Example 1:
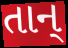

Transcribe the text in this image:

તાન્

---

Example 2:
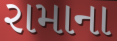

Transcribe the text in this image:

રામાના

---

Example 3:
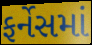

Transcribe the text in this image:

ફર્નેસમાં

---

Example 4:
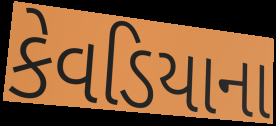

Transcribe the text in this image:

કેવડિયાના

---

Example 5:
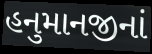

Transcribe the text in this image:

હનુમાનજીનાં